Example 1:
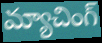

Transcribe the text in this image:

మ్యాచింగ్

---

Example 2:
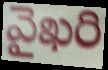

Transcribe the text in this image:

వైఖరి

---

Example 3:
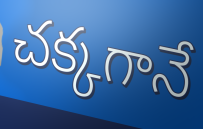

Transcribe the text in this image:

చక్కగానే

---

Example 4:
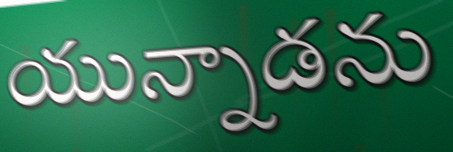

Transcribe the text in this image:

యున్నాడను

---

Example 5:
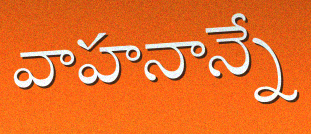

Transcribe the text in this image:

వాహనాన్నే